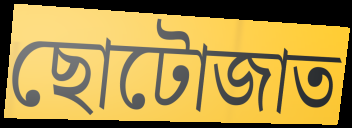
ছোটোজাত